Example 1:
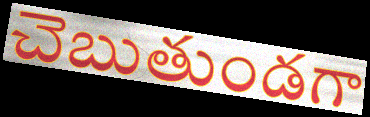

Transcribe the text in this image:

చెబుతుండగా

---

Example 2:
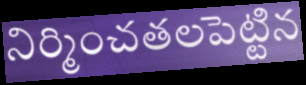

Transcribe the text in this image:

నిర్మించతలపెట్టిన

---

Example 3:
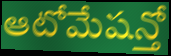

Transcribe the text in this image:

ఆటోమేషన్తో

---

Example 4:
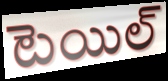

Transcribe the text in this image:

టెయిల్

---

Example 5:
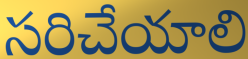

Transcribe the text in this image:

సరిచేయాలి